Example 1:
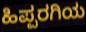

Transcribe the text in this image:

ಹಿಪ್ಪರಗಿಯ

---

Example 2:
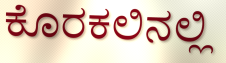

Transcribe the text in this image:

ಕೊರಕಲಿನಲ್ಲಿ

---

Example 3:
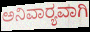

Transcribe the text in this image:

ಅನಿವಾರ‍್ಯವಾಗಿ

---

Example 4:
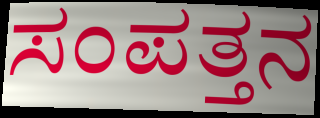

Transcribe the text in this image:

ಸಂಪತ್ತನ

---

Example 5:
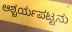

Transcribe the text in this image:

ಆಶ್ಚರ್ಯಪಟ್ಟನು